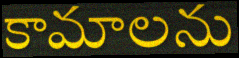
కామాలను